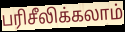
பரிசீலிக்கலாம்